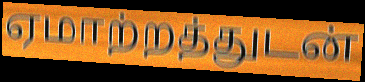
ஏமாற்றத்துடன்